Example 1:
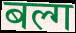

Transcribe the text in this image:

बल्ग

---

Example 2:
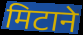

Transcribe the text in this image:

मिटाने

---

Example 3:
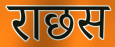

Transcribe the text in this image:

राछस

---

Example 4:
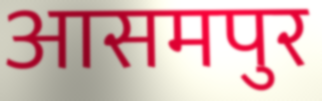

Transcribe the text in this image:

आसमपुर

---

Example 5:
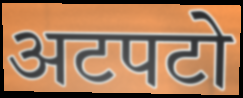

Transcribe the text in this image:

अटपटो